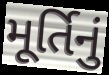
મૂર્તિનું